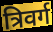
त्रिवर्ग